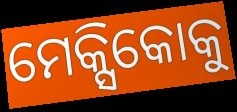
ମେକ୍ସିକୋକୁ